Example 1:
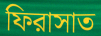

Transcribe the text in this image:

ফিরাসাত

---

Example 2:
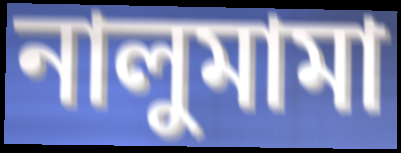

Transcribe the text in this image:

নালুমামা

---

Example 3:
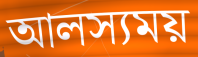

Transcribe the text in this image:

আলস্যময়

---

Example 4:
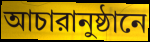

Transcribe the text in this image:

আচারানুষ্ঠানে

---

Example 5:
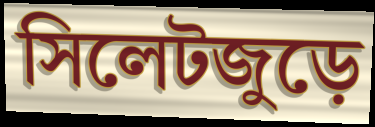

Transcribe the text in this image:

সিলেটজুড়ে